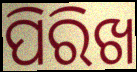
ପିରିଖ